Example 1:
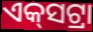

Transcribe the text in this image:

ଏକ୍‍ସଟ୍ରା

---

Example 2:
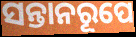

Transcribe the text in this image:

ସନ୍ତାନରୂପେ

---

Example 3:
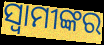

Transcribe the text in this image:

ସ୍ୱାମୀଙ୍କର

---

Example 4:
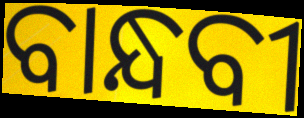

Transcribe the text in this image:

ବାନ୍ଧବୀ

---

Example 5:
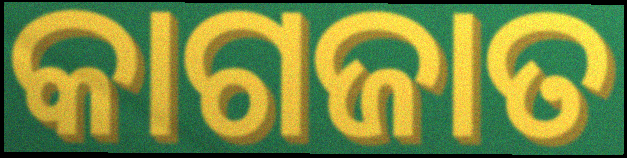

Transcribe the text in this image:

କାଗଜାତ